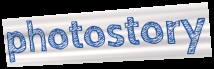
photostory